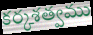
కర్కశత్వము